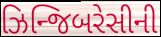
ઝિન્જિબરેસીની